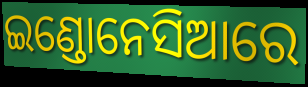
ଇଣ୍ଡୋନେସିଆରେ